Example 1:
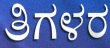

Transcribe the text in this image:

ತಿಗಳರ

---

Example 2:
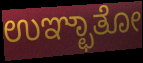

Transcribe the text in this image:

ಉಞ್ಛಾತೋ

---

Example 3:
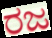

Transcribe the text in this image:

ರಜ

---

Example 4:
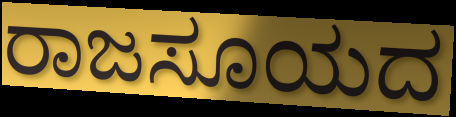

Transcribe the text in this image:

ರಾಜಸೂಯದ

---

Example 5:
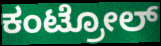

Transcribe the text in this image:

ಕಂಟ್ರೋಲ್